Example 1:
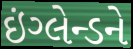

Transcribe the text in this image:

ઇંગ્લેન્ડને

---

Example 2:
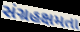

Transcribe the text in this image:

સંગ્રહક્ષમતા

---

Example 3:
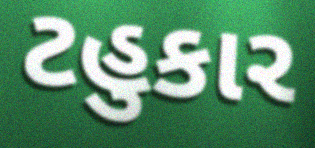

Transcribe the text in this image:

ટહુકાર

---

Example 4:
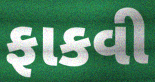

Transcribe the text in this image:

ફાકવી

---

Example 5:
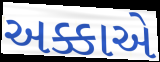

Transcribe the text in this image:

અક્કાએ